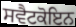
ਸਵੈਟਕੋਇਨ